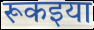
रूकइया